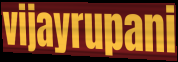
vijayrupani